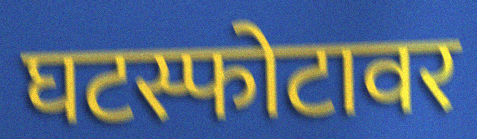
घटस्फोटावर